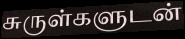
சுருள்களுடன்